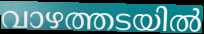
വാഴത്തടയിൽ